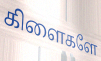
கிளைகளே